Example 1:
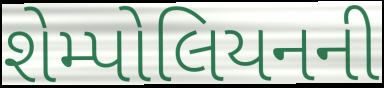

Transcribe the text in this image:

શેમ્પોલિયનની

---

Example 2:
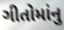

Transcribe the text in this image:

ગીતોમાંનુ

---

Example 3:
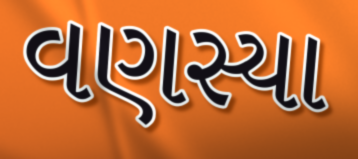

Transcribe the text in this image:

વણસ્યા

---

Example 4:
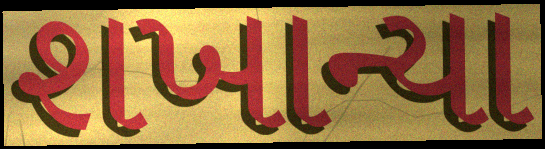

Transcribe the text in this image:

શખાન્યા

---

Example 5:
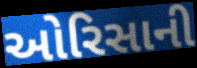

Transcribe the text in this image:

ઓરિસાની